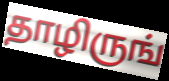
தாழிருங்